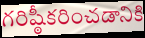
గరిష్ఠీకరించడానికి